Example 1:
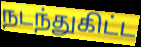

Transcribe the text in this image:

நடந்துகிட்ட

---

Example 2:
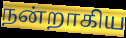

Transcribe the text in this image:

நன்றாகிய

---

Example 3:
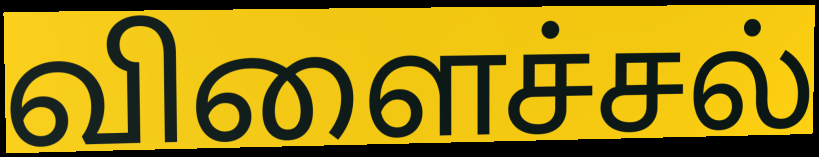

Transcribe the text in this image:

விளைச்சல்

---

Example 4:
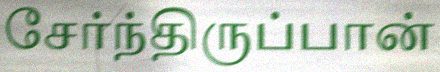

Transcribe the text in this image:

சேர்ந்திருப்பான்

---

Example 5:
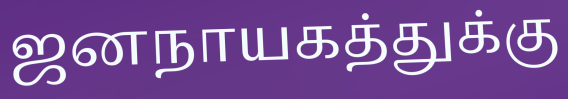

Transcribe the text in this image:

ஜனநாயகத்துக்கு